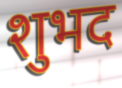
शुभद